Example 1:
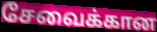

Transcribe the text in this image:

சேவைக்கான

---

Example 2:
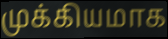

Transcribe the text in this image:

முக்கியமாக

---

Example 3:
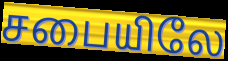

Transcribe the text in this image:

சபையிலே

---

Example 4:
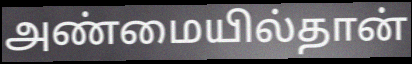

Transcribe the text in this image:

அண்மையில்தான்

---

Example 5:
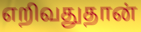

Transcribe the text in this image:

எறிவதுதான்